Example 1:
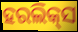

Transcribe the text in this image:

ହରଲିକ୍‍ସ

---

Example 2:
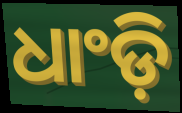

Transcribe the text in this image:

ଧାଂଡ଼ି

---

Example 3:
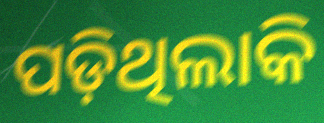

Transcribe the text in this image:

ପଡ଼ିଥିଲାକି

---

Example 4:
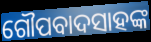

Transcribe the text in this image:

ଗୌପବାଦସାହଙ୍କ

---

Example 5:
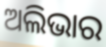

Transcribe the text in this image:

ଅଲିଭାର